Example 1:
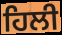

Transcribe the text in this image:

ਹਿਲੀ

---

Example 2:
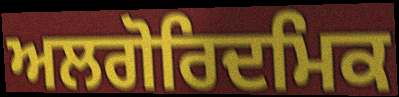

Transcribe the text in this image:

ਅਲਗੋਰਿਦਮਿਕ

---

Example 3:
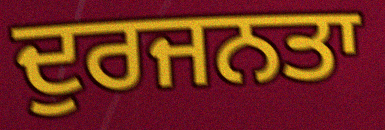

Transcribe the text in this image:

ਦੁਰਜਨਤਾ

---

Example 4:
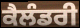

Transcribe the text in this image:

ਕੈਲੰਡਰੀ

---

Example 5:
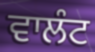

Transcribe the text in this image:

ਵਾਲੰਟ